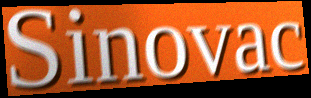
Sinovac